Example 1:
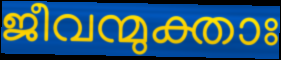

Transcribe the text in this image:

ജീവന്മുക്താഃ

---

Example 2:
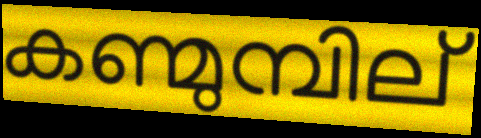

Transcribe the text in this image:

കണ്മുമ്പില്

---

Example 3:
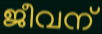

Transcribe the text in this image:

ജീവന്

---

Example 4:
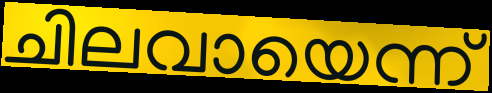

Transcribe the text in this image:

ചിലവായെന്ന്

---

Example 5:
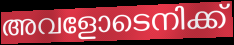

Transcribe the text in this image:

അവളോടെനിക്ക്